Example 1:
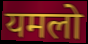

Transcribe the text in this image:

यमलो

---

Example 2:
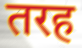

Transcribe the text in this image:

तरह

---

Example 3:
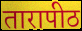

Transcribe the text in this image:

तारापीठ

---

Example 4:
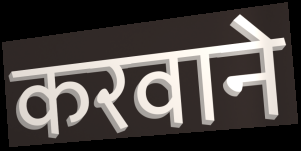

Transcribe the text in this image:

करवाने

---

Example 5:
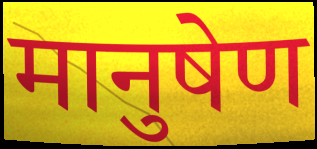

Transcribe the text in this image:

मानुषेण